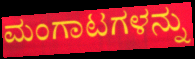
ಮಂಗಾಟಗಳನ್ನು